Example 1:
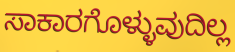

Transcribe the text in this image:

ಸಾಕಾರಗೊಳ್ಳುವುದಿಲ್ಲ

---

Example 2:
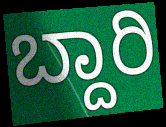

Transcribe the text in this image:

ಬ್ದಾರಿ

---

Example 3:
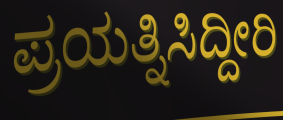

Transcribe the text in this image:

ಪ್ರಯತ್ನಿಸಿದ್ದೀರಿ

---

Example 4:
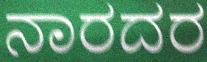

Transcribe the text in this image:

ನಾರದರ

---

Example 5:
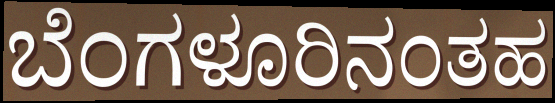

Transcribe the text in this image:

ಬೆಂಗಳೂರಿನಂತಹ